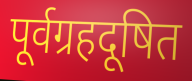
पूर्वग्रहदूषित